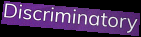
Discriminatory